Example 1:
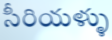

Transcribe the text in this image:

సీరియళ్ళు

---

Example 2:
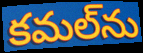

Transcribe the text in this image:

కమల్‌ను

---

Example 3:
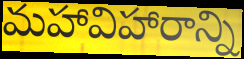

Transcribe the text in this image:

మహావిహారాన్ని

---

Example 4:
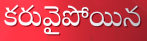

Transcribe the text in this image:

కరువైపోయిన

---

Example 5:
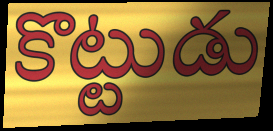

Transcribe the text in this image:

కొట్టుడు